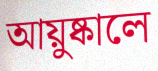
আয়ুষ্কালে